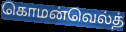
கொமன்வெல்த்